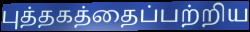
புத்தகத்தைப்பற்றிய